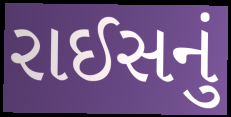
રાઈસનું